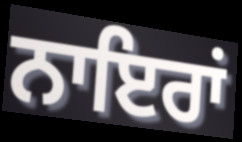
ਨਾਇਰਾਂ